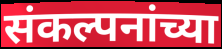
संकल्पनांच्या